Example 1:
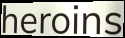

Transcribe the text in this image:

heroins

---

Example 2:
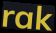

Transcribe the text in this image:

rak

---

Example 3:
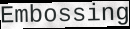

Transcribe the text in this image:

Embossing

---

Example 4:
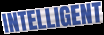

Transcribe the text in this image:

INTELLIGENT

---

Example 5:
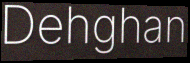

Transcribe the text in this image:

Dehghan